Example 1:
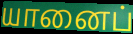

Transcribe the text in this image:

யானைப்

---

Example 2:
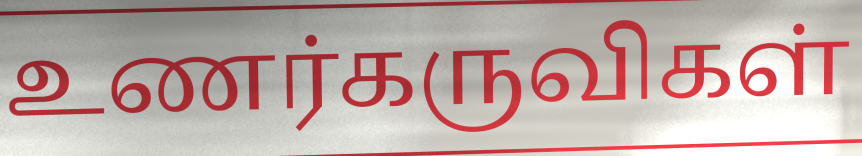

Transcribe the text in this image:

உணர்கருவிகள்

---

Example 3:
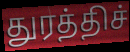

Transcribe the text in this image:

துரத்திச்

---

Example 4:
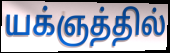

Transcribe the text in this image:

யக்ஞத்தில்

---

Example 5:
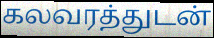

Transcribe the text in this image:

கலவரத்துடன்